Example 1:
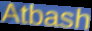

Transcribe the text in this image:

Atbash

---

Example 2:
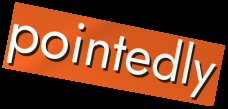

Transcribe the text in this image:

pointedly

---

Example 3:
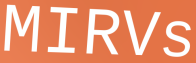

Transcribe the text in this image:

MIRVs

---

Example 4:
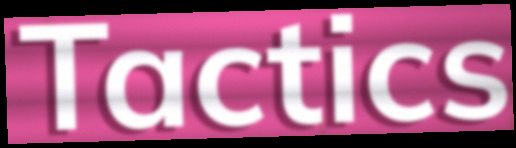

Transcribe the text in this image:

Tactics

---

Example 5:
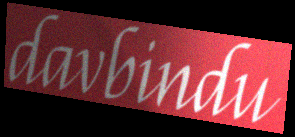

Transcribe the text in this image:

davbindu